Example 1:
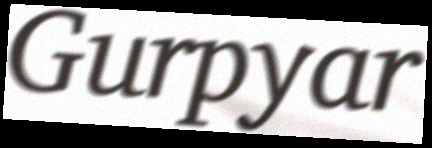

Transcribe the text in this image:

Gurpyar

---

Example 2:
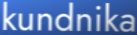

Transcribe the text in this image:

kundnika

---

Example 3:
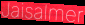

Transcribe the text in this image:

Jaisalmer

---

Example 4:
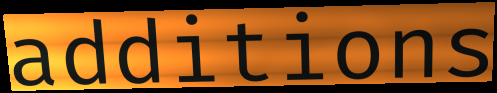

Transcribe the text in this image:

additions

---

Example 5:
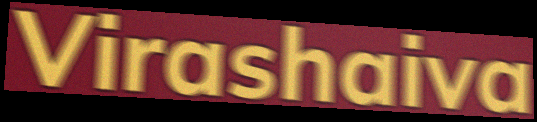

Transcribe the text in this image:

Virashaiva